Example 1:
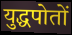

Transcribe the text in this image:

युद्धपोतों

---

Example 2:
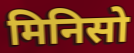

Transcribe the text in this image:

मिनिसो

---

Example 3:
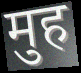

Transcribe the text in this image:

मुह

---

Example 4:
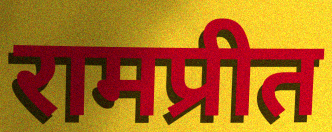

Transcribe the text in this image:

रामप्रीत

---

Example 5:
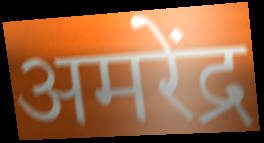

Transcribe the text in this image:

अमरेंद्र